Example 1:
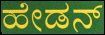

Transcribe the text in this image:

ಹೇಡನ್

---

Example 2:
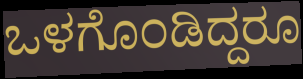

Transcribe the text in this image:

ಒಳಗೊಂಡಿದ್ದರೂ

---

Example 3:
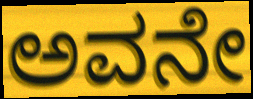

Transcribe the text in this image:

ಅವನೇ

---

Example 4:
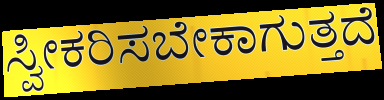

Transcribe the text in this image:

ಸ್ವೀಕರಿಸಬೇಕಾಗುತ್ತದೆ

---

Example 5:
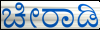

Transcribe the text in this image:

ಚೀರಾಡಿ